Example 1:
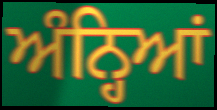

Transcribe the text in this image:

ਅੰਨ੍ਹਿਆਂ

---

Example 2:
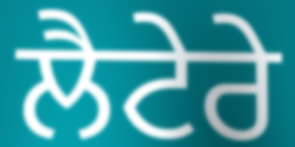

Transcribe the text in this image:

ਲੈਟੇਰੇ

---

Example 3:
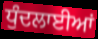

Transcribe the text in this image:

ਧੁੰਦਲਾਈਆਂ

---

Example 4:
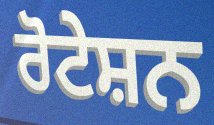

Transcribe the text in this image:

ਰੋਟੇਸ਼ਨ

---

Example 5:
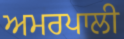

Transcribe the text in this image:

ਅਮਰਪਾਲੀ